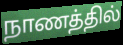
நாணத்தில்